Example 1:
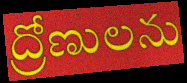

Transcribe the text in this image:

ద్రోణులను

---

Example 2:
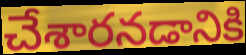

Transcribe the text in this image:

చేశారనడానికి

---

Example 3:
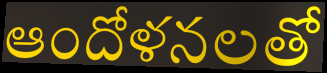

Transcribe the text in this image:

ఆందోళనలతో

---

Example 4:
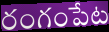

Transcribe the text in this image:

రంగంపేట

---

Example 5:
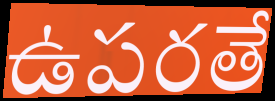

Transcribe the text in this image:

ఉపరతే